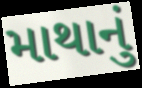
માથાનું